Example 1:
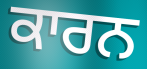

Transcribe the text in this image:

ਕਾਰਨ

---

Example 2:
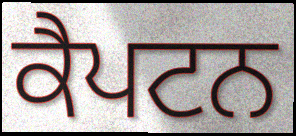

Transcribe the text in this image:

ਕੈਪਟਨ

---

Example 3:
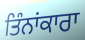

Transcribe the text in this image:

ਤਿੰਨਾਂਕਾਰਾ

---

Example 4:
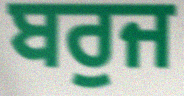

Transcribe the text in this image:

ਬਰੁਜ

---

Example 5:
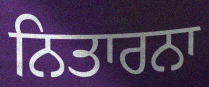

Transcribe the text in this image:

ਨਿਤਾਰਨਾ